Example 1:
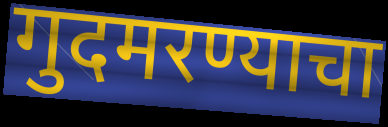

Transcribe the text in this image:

गुदमरण्याचा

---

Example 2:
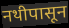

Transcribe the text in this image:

नथीपासून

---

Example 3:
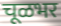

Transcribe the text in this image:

चूळभर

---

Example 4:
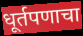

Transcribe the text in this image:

धूर्तपणाचा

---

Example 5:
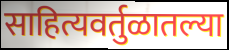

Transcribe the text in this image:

साहित्यवर्तुळातल्या